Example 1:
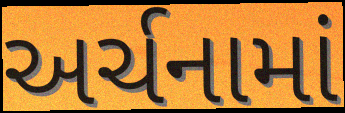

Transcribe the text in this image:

અર્ચનામાં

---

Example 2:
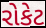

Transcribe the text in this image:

રોકેટ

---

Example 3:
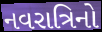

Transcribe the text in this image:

નવરાત્રિનો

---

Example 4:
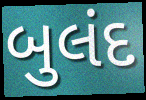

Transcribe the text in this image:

બુલંદ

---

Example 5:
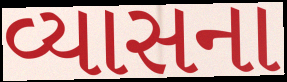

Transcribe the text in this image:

વ્યાસના